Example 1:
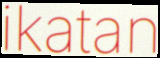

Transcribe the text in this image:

ikatan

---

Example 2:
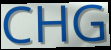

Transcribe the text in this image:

CHG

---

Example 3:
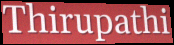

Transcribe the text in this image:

Thirupathi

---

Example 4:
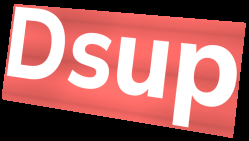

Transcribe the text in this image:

Dsup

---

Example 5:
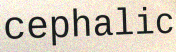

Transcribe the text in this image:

cephalic